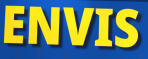
ENVIS